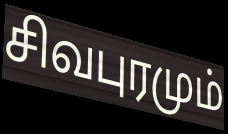
சிவபுரமும்